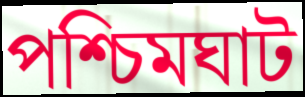
পশ্চিমঘাট